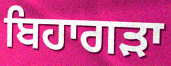
ਬਿਹਾਗੜਾ